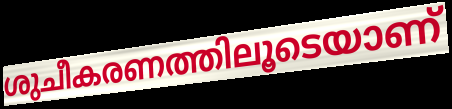
ശുചീകരണത്തിലൂടെയാണ്